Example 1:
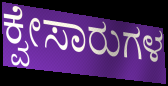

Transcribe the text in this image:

ಕ್ವೇಸಾರುಗಳ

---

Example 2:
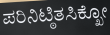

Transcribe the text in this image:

ಪರಿನಿಟ್ಠಿತಸಿಕ್ಖೋ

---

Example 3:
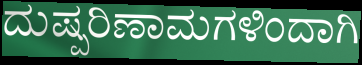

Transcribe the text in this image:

ದುಷ್ಪರಿಣಾಮಗಳಿಂದಾಗಿ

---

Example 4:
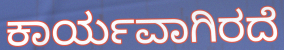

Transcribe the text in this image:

ಕಾರ್ಯವಾಗಿರದೆ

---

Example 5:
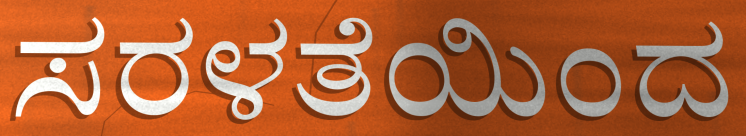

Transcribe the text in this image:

ಸರಳತೆಯಿಂದ